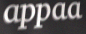
appaa